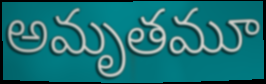
అమృతమూ